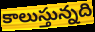
కాలుస్తున్నది